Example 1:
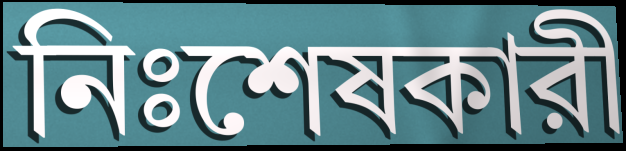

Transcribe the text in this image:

নিঃশেষকারী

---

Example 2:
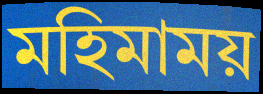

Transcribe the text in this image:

মহিমাময়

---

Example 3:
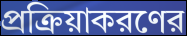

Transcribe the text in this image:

প্রক্রিয়াকরণের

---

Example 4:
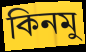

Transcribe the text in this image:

কিনমু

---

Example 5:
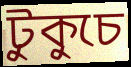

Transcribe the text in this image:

টুকুচে